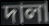
দালা